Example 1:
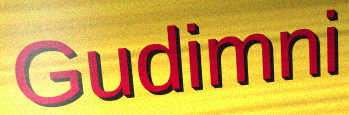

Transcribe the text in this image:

Gudimni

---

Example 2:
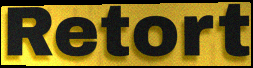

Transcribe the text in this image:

Retort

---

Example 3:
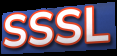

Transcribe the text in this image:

SSSL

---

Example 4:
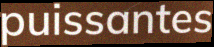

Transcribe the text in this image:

puissantes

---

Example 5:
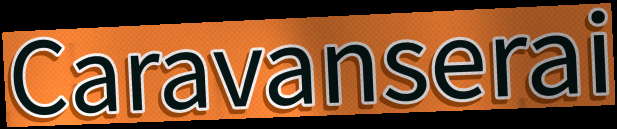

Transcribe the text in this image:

Caravanserai